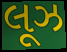
લૂઝ